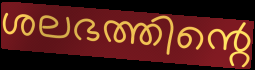
ശലഭത്തിന്റെ